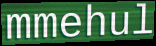
mmehul